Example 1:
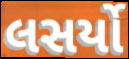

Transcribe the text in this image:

લસર્યો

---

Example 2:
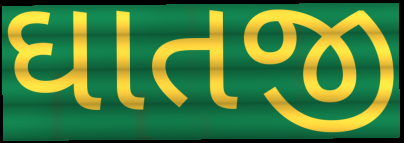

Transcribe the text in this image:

ઘાતજી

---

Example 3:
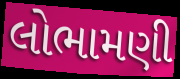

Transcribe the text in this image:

લોભામણી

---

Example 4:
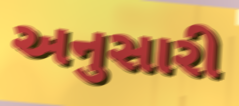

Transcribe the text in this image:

અનુસારી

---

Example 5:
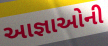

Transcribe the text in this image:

આજ્ઞાઓની